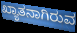
ಖ್ಯಾತನಾಗಿರುವ